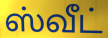
ஸ்வீட்